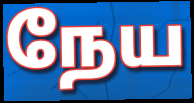
நேய